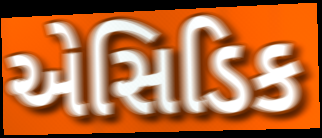
એસિડિક